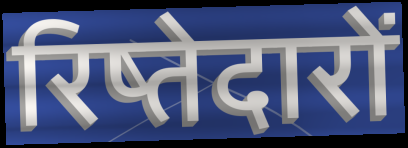
रिष्तेदारों